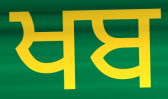
ਖਬ